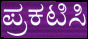
ಪ್ರಕಟಿಸಿ